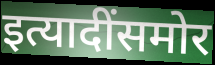
इत्यादींसमोर